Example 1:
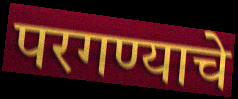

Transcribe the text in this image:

परगण्याचे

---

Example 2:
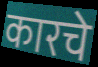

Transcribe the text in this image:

कारचे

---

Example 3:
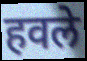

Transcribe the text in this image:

हवले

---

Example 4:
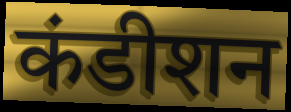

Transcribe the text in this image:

कंडीशन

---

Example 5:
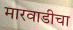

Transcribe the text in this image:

मारवाडीचा